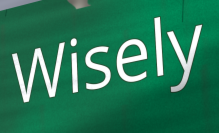
Wisely